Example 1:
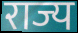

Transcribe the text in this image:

राज्‍य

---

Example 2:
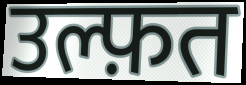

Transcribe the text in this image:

उल्फ़त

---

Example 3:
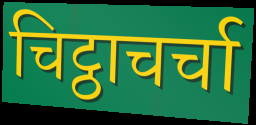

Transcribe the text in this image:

चिट्ठाचर्चा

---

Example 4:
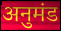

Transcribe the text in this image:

अनुमंड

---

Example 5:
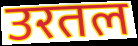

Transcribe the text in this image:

उरतल